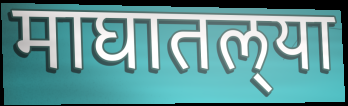
माघातल्या